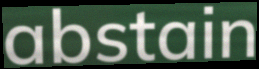
abstain